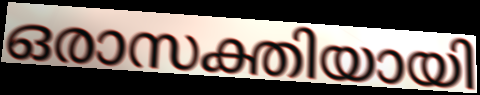
ഒരാസക്തിയായി